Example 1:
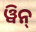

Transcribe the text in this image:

ୱିନ୍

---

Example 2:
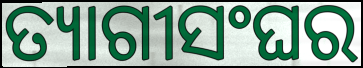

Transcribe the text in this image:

ତ୍ୟାଗୀସଂଘର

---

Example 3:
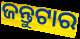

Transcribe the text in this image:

ଜନ୍ତୁଟାର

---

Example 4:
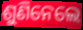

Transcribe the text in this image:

ଶୁଣିନେଲେ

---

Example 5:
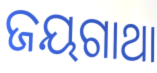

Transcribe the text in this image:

ଜୟଗାଥା